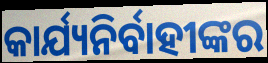
କାର୍ଯ୍ୟନିର୍ବାହୀଙ୍କର